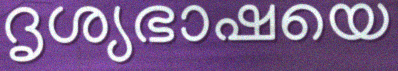
ദൃശ്യഭാഷയെ